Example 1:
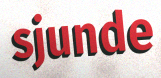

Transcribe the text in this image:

sjunde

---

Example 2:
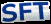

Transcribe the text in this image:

SFT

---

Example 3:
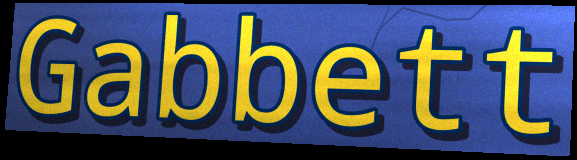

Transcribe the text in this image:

Gabbett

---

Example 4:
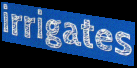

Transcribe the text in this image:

irrigates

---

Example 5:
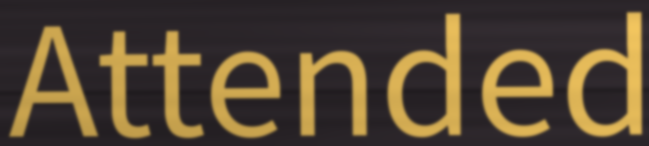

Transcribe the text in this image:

Attended